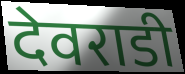
देवराडी